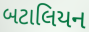
બટાલિયન